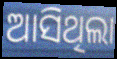
ଆସିଥିଲା